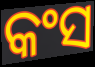
କଂସ